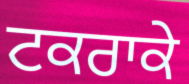
ਟਕਰਾਕੇ